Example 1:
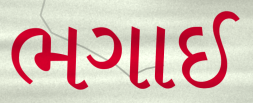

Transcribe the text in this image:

ભગાઈ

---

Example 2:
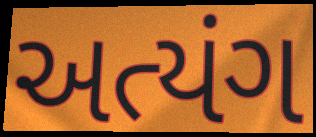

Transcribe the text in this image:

અત્યંગ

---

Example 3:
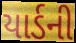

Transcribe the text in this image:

યાર્ડની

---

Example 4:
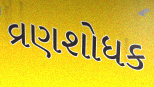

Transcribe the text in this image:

વ્રણશોધક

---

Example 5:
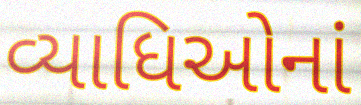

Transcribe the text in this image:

વ્યાધિઓનાં